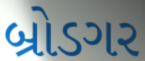
બ્રોડગર